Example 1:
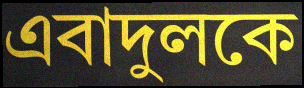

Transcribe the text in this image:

এবাদুলকে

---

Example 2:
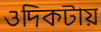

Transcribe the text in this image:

ওদিকটায়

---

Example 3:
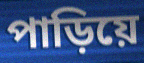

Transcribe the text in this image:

পাড়িয়ে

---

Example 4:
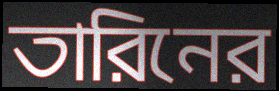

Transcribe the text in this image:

তারিনের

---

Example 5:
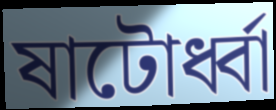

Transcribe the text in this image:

ষাটোর্ধ্বা